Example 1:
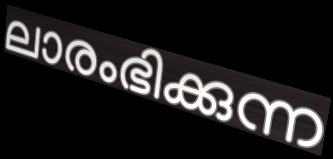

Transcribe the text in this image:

ലാരംഭിക്കുന്ന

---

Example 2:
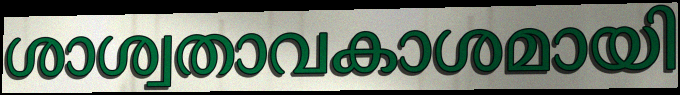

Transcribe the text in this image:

ശാശ്വതാവകാശമായി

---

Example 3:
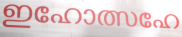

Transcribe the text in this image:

ഇഹോത്സഹേ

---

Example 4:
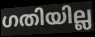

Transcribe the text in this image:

ഗതിയില്ല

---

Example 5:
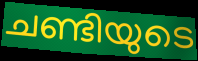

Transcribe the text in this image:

ചണ്ടിയുടെ